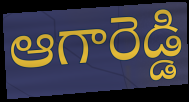
ఆగారెడ్డి